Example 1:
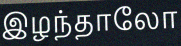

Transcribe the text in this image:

இழந்தாலோ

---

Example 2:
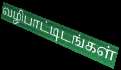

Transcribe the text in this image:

வழிபாட்டிடங்கள்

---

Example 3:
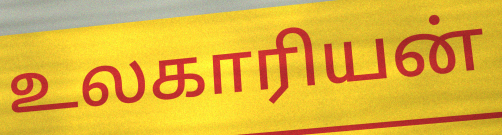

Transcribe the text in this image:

உலகாரியன்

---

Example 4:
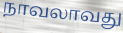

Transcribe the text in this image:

நாவலாவது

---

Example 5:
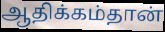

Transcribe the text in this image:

ஆதிக்கம்தான்